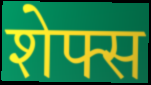
शेफ्स